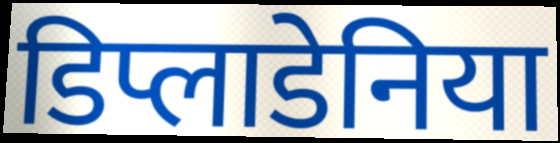
डिप्लाडेनिया